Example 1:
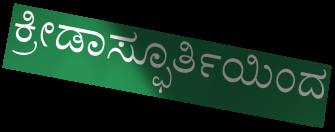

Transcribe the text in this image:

ಕ್ರೀಡಾಸ್ಫೂರ್ತಿಯಿಂದ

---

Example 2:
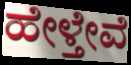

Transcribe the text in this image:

ಹೇಳ್ತೇವೆ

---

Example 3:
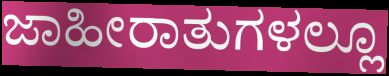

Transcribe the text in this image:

ಜಾಹೀರಾತುಗಳಲ್ಲೂ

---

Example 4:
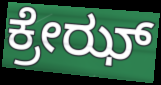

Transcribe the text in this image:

ಕ್ರೇಝ್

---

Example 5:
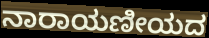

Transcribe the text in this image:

ನಾರಾಯಣೀಯದ